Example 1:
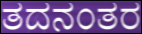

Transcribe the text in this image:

ತದನಂತರ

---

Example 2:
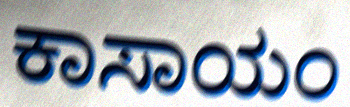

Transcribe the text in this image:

ಕಾಸಾಯಂ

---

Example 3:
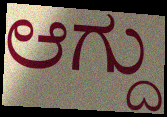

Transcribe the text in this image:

ಆಗ್ದು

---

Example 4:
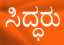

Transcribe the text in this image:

ಸಿದ್ಧರು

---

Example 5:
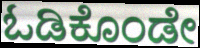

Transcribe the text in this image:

ಓಡಿಕೊಂಡೇ